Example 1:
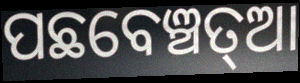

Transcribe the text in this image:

ପଛବେଞ୍ଚତ୍ଆ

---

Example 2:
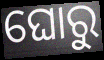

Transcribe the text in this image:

ଘୋରୁ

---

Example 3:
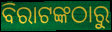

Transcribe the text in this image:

ବିରାଟଙ୍କଠାରୁ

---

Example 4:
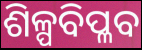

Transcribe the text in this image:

ଶିଳ୍ପବିପ୍ଳବ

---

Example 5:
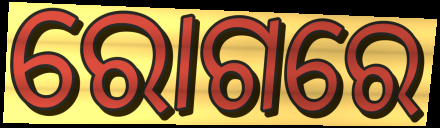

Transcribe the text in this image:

ରୋଗରେ